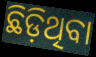
ଛିଡ଼ିଥିବା